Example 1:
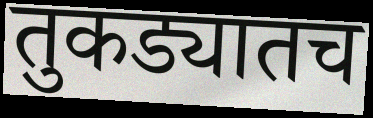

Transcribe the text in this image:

तुकड्यातच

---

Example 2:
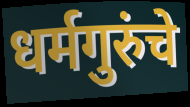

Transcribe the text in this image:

धर्मगुरुंचे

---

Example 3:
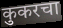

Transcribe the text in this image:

कुकरचा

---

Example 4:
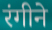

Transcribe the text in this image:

रंगीने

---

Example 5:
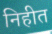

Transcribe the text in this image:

निहीत